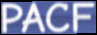
PACF